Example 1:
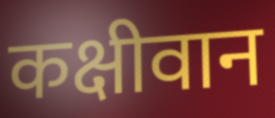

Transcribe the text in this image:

कक्षीवान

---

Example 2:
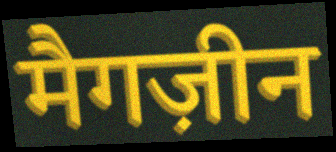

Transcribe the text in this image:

मैगज़ीन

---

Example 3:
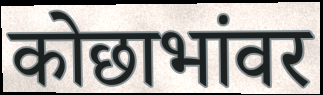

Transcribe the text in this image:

कोछाभांवर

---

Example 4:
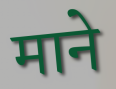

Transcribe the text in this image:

माने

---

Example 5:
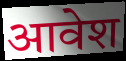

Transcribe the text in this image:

आवेश